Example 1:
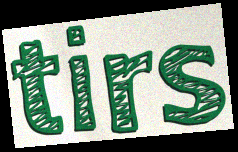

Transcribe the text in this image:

tirs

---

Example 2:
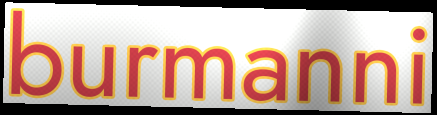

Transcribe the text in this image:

burmanni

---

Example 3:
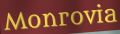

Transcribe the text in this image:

Monrovia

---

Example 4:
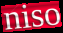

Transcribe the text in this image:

niso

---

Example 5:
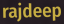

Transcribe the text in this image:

rajdeep